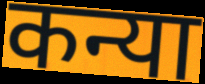
कन्या